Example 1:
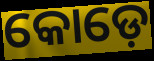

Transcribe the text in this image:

କୋଡ଼େ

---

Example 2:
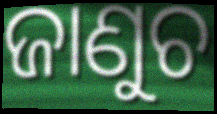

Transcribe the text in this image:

ଜାଣୁଚ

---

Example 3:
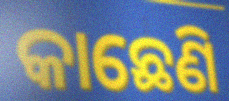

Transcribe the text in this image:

କାଛେଣି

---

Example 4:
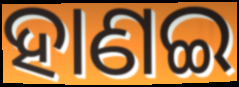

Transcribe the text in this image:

ହାଣଇ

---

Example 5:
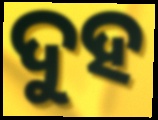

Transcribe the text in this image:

ଦୁହ